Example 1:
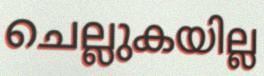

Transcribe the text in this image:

ചെല്ലുകയില്ല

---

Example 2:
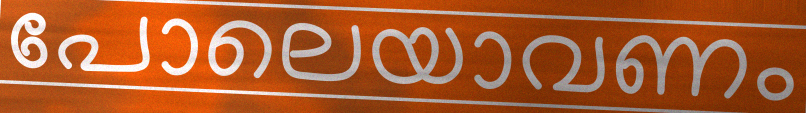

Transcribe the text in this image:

പോലെയാവണം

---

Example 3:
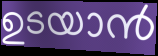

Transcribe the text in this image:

ഉടയാൻ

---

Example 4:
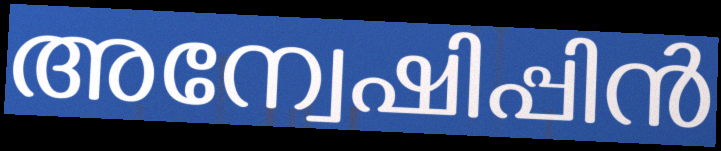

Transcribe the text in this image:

അന്വേഷിപ്പിൻ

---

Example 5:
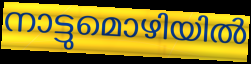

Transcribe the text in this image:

നാട്ടുമൊഴിയിൽ